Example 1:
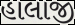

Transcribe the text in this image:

હાલાજી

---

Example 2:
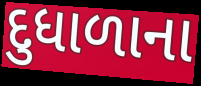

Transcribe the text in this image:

દુધાળાના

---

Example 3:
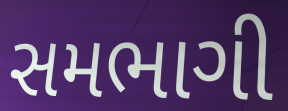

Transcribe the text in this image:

સમભાગી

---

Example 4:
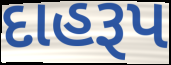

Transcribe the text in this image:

દાહરૂપ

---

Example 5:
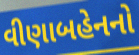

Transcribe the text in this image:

વીણાબહેનનો